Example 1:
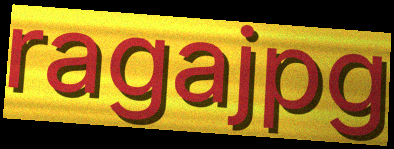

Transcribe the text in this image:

ragajpg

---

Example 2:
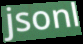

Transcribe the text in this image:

jsonl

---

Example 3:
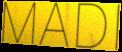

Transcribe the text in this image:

MADI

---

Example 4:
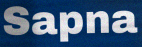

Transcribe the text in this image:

Sapna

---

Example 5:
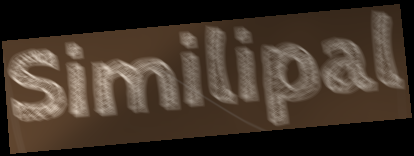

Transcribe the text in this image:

Similipal